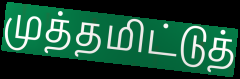
முத்தமிட்டுத்